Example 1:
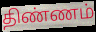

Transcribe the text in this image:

திண்ணம்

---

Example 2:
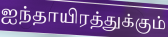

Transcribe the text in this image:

ஐந்தாயிரத்துக்கும்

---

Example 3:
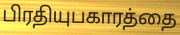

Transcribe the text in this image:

பிரதியுபகாரத்தை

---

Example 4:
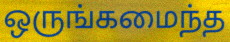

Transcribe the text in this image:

ஒருங்கமைந்த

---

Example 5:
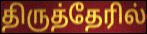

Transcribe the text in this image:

திருத்தேரில்